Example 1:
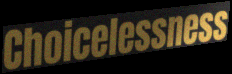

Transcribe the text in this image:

Choicelessness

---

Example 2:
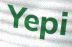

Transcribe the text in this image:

Yepi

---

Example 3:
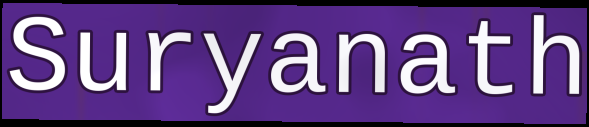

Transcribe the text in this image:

Suryanath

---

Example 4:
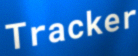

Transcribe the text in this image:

Tracker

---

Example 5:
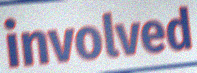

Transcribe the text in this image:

involved